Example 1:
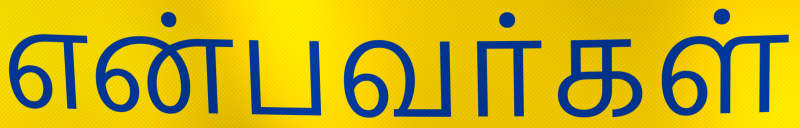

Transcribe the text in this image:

என்பவர்கள்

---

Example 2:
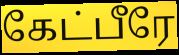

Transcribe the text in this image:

கேட்பீரே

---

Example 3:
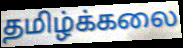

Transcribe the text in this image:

தமிழ்க்கலை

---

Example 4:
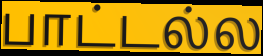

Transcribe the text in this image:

பாட்டல்ல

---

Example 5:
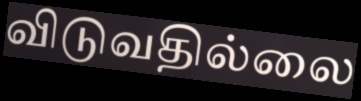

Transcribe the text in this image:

விடுவதில்லை